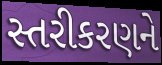
સ્તરીકરણને